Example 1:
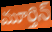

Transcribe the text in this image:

మూర్తిన్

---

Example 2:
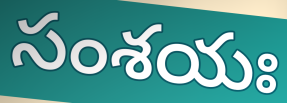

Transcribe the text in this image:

సంశయః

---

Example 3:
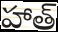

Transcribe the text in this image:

హాత్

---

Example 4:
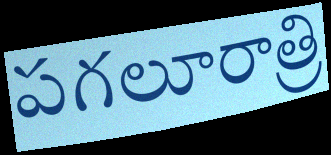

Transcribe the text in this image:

పగలూరాత్రి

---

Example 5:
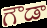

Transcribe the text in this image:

గౌడా